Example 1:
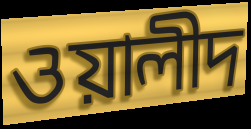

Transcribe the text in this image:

ওয়ালীদ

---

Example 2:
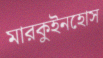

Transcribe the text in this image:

মারকুইনহোস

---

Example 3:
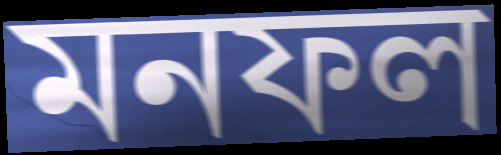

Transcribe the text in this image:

মনফল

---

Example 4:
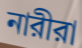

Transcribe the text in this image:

নারীরা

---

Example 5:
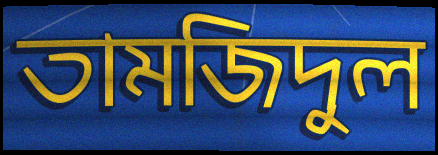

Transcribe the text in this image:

তামজিদুল